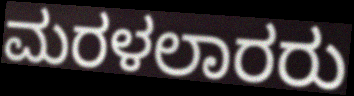
ಮರಳಲಾರರು